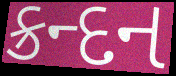
ક્રન્દન